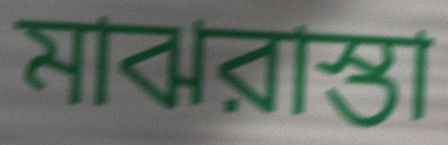
মাঝরাস্তা